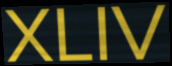
XLIV